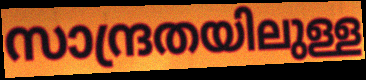
സാന്ദ്രതയിലുള്ള